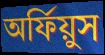
অর্ফিয়ুস